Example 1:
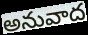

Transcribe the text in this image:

అనువాద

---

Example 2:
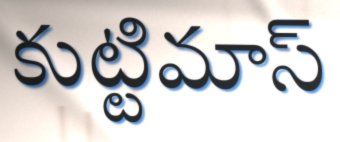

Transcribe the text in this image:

కుట్టిమాస్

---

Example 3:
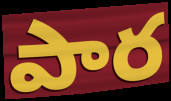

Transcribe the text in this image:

పార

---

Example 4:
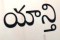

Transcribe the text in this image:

యాన్తి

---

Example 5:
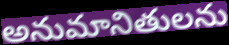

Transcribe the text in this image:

అనుమానితులను